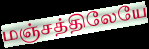
மஞ்சத்திலேயே